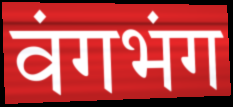
वंगभंग